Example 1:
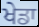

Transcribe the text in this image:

ਖੇਡਾ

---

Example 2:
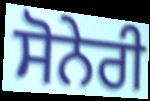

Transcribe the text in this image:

ਸੋਨੇਰੀ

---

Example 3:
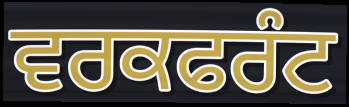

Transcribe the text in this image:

ਵਰਕਫਰੰਟ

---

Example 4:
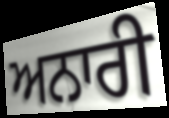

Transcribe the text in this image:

ਅਨਾਰੀ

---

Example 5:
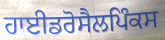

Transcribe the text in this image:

ਹਾਈਡਰੋਸੈਲਪਿੰਕਸ